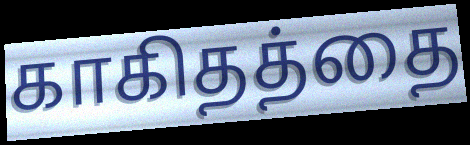
காகிதத்தை